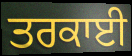
ਤਰਕਾਈ